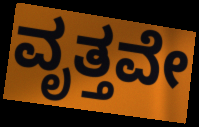
ವೃತ್ತವೇ